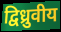
द्विध्रुवीय